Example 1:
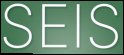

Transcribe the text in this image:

SEIS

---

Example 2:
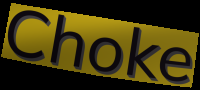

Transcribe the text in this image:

Choke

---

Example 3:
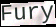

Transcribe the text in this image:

Fury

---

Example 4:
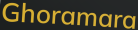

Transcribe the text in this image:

Ghoramara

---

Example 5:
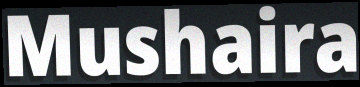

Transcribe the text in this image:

Mushaira